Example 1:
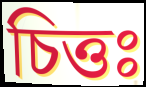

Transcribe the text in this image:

চিত্তঃ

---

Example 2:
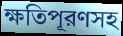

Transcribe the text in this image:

ক্ষতিপূরণসহ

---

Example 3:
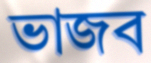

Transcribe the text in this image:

ভাজব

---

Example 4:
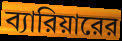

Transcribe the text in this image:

ব্যারিয়ারের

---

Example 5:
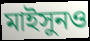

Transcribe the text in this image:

মাইসুনও